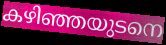
കഴിഞ്ഞയുടനെ